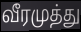
வீரமுத்து